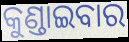
କୁଣ୍ଡାଇବାର